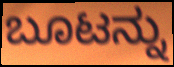
ಬೂಟನ್ನು